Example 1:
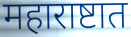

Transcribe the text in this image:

महाराष्टात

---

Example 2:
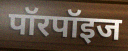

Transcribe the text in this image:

पॉरपॉइज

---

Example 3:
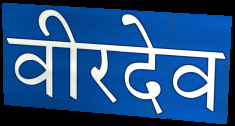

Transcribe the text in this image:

वीरदेव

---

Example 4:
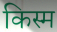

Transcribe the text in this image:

किस्म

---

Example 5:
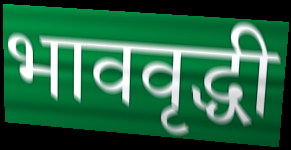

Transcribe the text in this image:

भाववृद्धी